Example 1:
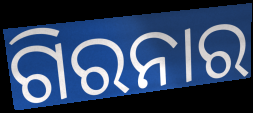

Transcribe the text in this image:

ଗିରନାର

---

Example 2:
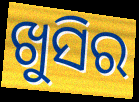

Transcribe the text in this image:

ଖୁସିର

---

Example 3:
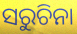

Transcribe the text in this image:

ସରୁଚିନା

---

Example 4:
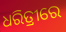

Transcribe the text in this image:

ଧରିତ୍ରୀରେ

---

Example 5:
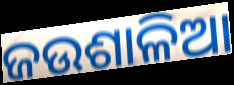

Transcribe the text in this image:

ଜଉଶାଳିଆ